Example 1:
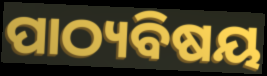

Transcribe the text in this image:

ପାଠ୍ୟବିଷୟ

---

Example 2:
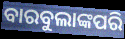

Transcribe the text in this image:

ବାରବୁଲାଙ୍କପରି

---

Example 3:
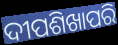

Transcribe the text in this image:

ଦୀପଶିଖାପରି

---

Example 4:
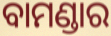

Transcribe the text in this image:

ବାମଣ୍ଡାର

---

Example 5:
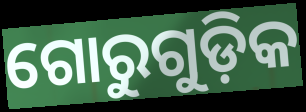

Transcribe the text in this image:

ଗୋରୁଗୁଡ଼ିକ